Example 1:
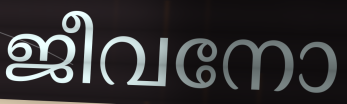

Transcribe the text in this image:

ജീവനോ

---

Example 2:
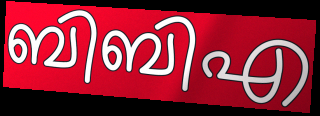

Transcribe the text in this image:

ബിബിഎ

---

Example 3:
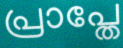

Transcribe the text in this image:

പ്രാപ്തേ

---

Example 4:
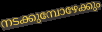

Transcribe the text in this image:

നടക്കുമ്പോഴേക്കും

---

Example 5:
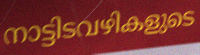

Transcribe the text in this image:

നാട്ടിടവഴികളുടെ